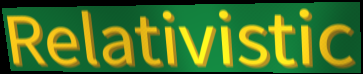
Relativistic